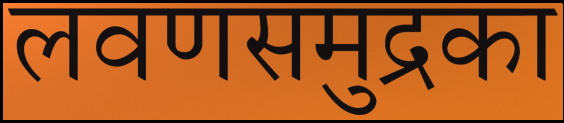
लवणसमुद्रका